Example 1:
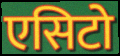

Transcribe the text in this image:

एसिटो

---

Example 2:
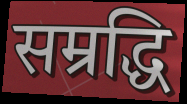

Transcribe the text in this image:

सम्रद्धि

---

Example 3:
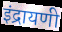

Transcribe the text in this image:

इंद्रायणी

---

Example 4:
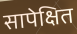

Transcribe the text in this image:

सापेक्षित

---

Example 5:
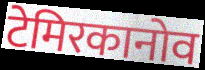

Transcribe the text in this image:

टेमिरकानोव